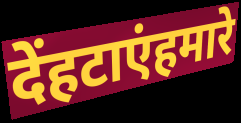
देंहटाएंहमारे